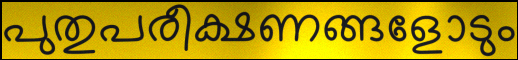
പുതുപരീക്ഷണങ്ങളോടും